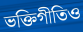
ভক্তিগীতিও